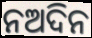
ନଅଦିନ